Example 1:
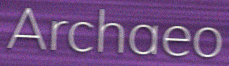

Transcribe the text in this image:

Archaeo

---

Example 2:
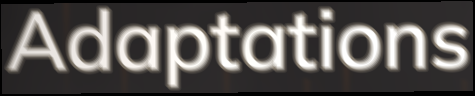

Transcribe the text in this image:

Adaptations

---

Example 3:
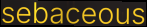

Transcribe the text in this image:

sebaceous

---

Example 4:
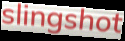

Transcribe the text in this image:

slingshot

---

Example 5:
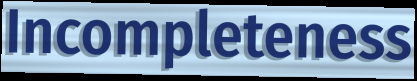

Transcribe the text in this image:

Incompleteness